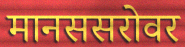
मानससरोवर